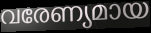
വരേണ്യമായ